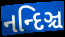
નન્દિઞ્ચ